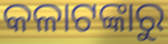
କଳାଟଙ୍କାରୁ